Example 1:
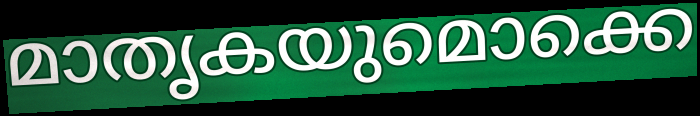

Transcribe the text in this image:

മാതൃകയുമൊക്കെ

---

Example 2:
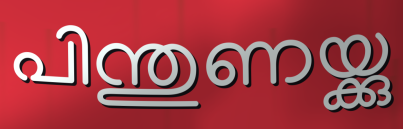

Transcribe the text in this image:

പിന്തുണയ്ക്കു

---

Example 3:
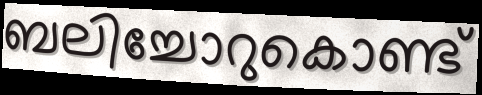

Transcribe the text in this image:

ബലിച്ചോറുകൊണ്ട്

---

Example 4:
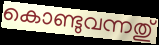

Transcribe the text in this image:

കൊണ്ടുവന്നതു്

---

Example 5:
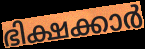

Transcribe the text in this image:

ഭിക്ഷക്കാർ